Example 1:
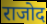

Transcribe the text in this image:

राजोद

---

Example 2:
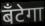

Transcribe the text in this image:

बँटेगा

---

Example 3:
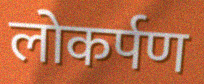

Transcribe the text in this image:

लोकर्पण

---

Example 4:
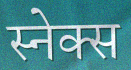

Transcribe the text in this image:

स्नेक्स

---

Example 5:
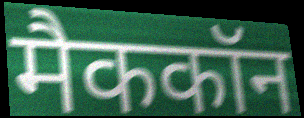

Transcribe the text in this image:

मैककॉन